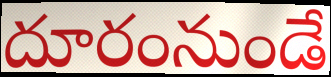
దూరంనుండే